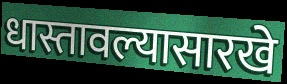
धास्तावल्यासारखे